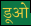
डूओ